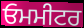
ਓਮਮੀਟਰ